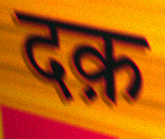
दक़